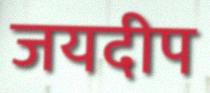
जयदीप